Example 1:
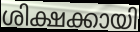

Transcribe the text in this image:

ശിക്ഷക്കായി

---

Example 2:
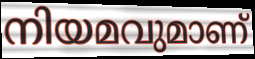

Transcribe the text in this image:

നിയമവുമാണ്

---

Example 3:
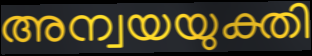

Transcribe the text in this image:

അന്വയയുക്തി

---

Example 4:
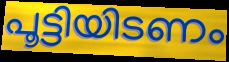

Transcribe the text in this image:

പൂട്ടിയിടണം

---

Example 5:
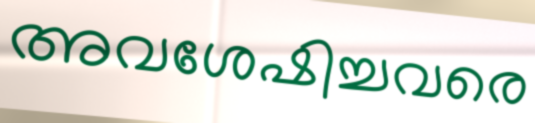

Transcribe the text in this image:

അവശേഷിച്ചവരെ